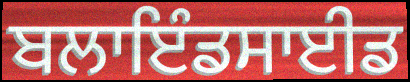
ਬਲਾਇੰਡਸਾਈਡ